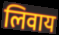
लिवाय